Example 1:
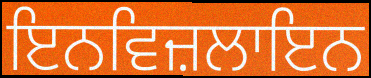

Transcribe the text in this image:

ਇਨਵਿਜ਼ਲਾਇਨ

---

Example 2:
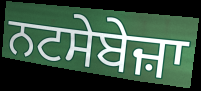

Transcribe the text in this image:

ਨਟਸੇਬੇਜ਼ਾ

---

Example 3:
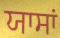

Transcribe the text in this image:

ਯਾਸਾਂ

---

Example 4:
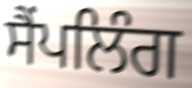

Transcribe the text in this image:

ਸੈਂਪਲਿੰਗ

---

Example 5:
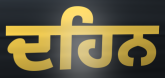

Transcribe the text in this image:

ਦਹਿਨ